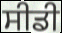
ਸੀਡੀ